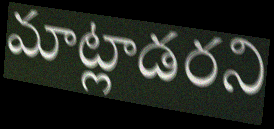
మాట్లాడరని